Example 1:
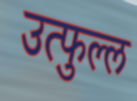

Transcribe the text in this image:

उत्फुल्ल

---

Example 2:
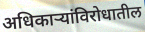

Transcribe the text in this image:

अधिकाऱ्यांविरोधातील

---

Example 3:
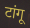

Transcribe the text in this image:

टांगू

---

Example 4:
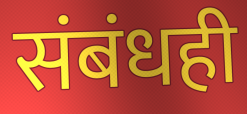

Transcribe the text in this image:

संबंधही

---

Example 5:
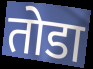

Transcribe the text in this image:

तोडा